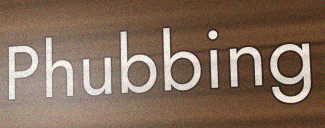
Phubbing